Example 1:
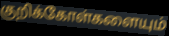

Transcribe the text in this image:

குறிக்கோள்களையும்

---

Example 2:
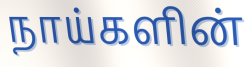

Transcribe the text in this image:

நாய்களின்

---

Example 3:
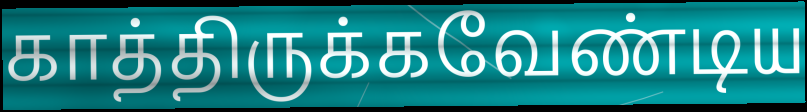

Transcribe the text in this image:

காத்திருக்கவேண்டிய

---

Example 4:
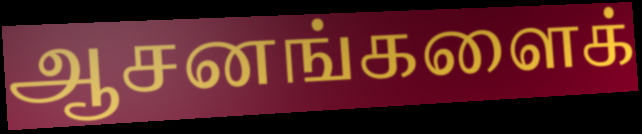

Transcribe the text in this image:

ஆசனங்களைக்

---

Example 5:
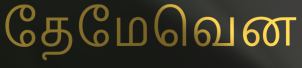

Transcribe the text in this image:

தேமேவென